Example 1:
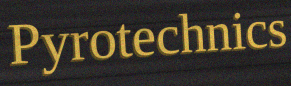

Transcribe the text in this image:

Pyrotechnics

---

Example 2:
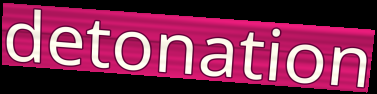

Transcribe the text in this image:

detonation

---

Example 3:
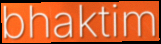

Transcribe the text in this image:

bhaktim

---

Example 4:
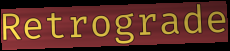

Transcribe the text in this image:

Retrograde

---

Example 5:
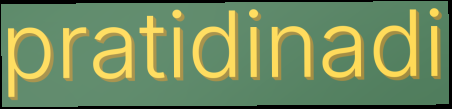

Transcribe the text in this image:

pratidinadi